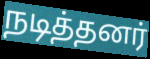
நடித்தனர்